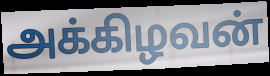
அக்கிழவன்